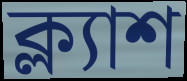
ক্ল্যাশ